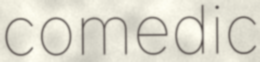
comedic